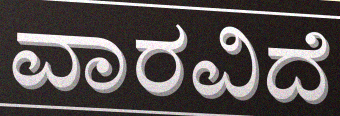
ವಾರವಿದೆ